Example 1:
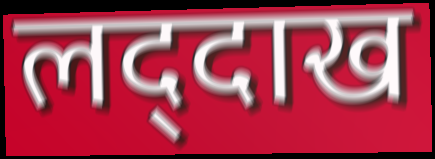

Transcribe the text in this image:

लद्‌दाख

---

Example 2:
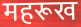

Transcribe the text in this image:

महरूख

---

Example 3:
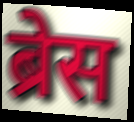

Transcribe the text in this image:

ब्रेस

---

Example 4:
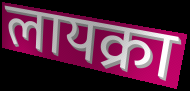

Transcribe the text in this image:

लायक्रा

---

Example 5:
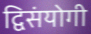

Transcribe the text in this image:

द्विसंयोगी